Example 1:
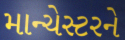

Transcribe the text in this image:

માન્ચેસ્ટરને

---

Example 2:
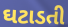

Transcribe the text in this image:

ઘટાડતી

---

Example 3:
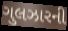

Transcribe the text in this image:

ગુલઝારની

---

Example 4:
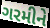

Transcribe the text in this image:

ગરમીને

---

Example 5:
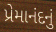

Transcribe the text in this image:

પ્રેમાનંદનું